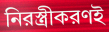
নিরস্ত্রীকরণই